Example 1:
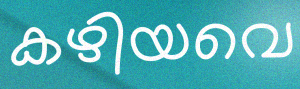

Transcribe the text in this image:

കഴിയവെ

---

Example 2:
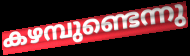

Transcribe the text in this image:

കഴമ്പുണ്ടെന്നു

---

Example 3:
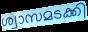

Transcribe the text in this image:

ശ്വാസമടക്കി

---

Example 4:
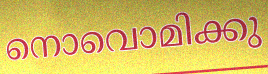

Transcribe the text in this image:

നൊവൊമിക്കു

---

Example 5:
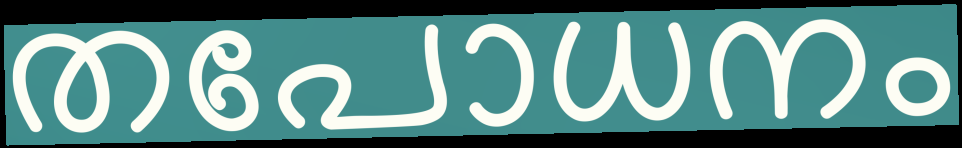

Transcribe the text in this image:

തപോധനം